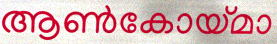
ആൺകോയ്മാ